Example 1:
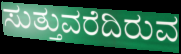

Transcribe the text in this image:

ಸುತ್ತುವರೆದಿರುವ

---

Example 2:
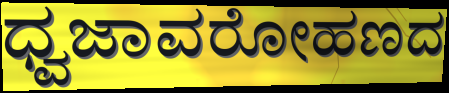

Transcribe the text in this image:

ಧ್ವಜಾವರೋಹಣದ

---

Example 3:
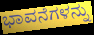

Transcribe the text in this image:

ಭಾವನೆಗಳನ್ನು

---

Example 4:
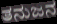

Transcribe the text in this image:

ತನುಜನ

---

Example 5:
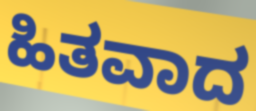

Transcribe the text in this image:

ಹಿತವಾದ